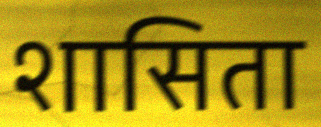
शासिता